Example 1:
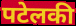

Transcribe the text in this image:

पटेलकी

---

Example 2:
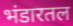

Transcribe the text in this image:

भंडारतल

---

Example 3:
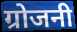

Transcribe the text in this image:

ग्रोजनी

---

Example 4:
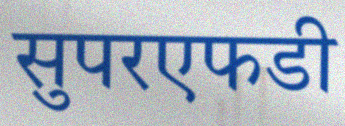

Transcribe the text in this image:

सुपरएफडी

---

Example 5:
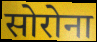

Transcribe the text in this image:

सोरोना